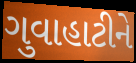
ગુવાહાટીને